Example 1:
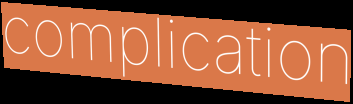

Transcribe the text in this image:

complication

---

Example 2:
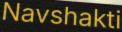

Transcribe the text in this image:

Navshakti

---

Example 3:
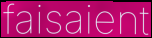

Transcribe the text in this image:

faisaient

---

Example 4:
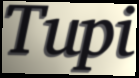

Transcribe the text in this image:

Tupi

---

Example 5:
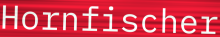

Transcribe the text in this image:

Hornfischer